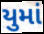
યુમાં